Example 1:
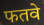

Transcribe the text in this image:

फतवे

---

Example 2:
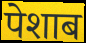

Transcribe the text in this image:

पेशाब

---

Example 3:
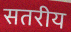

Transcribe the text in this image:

सतरीय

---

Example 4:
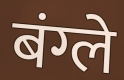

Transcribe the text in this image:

बंग्ले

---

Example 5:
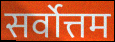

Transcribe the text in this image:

सर्वोत्तम